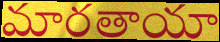
మారతాయా